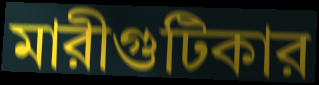
মারীগুটিকার